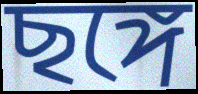
ছঙ্গে